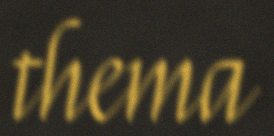
thema